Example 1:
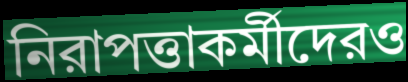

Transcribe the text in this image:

নিরাপত্তাকর্মীদেরও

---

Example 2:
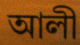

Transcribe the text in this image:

আলী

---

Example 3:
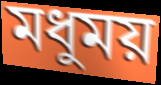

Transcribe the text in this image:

মধুময়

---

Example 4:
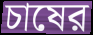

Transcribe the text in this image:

চাষের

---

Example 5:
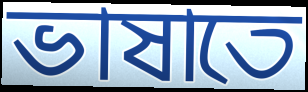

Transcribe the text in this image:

ভাষাতে